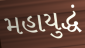
મહાયુદ્ધં